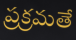
ప్రక్రమతే